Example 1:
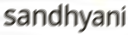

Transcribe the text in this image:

sandhyani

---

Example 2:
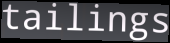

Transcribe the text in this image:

tailings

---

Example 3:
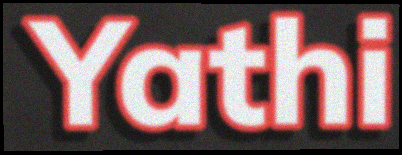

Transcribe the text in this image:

Yathi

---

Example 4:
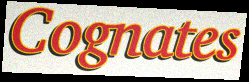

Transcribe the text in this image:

Cognates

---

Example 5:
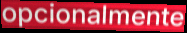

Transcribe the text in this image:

opcionalmente